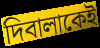
দিবালাকেই